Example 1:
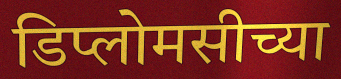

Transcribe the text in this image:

डिप्लोमसीच्या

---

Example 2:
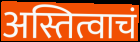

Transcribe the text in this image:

अस्तित्वाचं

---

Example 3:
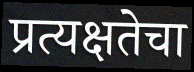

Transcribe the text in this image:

प्रत्यक्षतेचा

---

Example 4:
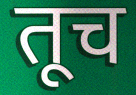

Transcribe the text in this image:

तूच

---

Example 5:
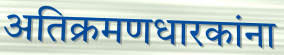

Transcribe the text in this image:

अतिक्रमणधारकांना